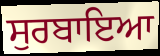
ਸੁਰਬਾਇਆ